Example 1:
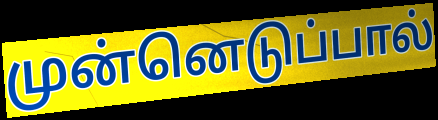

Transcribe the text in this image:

முன்னெடுப்பால்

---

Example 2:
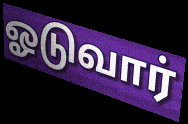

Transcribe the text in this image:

ஓடுவார்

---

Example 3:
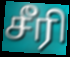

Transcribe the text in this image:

சீரி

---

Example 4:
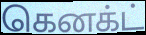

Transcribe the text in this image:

கெனக்ட்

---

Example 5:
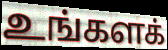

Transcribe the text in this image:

உங்களக்